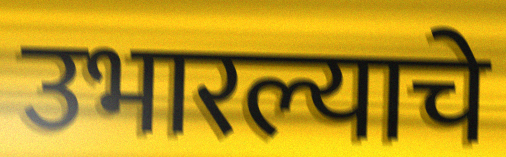
उभारल्याचे